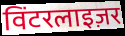
विंटरलाइज़र